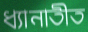
ধ্যানাতীত